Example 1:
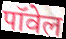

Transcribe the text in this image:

पॉवेल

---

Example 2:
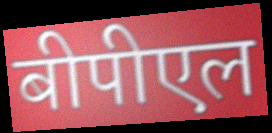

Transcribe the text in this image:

बीपीएल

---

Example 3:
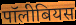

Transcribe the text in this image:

पॉलीबियस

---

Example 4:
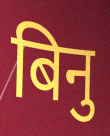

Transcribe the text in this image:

बिनु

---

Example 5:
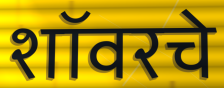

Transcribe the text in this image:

शॉवरचे